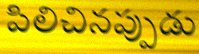
పిలిచినప్పుడు